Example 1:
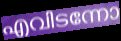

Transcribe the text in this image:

എവിടന്നോ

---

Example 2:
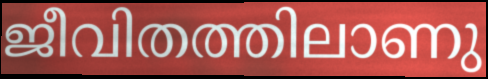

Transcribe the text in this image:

ജീവിതത്തിലാണു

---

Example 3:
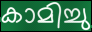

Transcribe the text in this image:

കാമിച്ചു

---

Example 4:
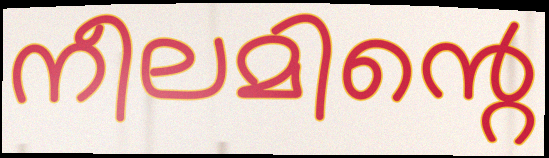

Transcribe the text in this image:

നീലമിന്റെ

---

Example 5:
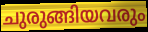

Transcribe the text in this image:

ചുരുങ്ങിയവരും